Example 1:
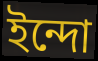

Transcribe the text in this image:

ইন্দো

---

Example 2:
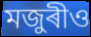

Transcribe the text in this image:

মজুৰীও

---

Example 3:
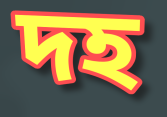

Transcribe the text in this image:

দহ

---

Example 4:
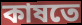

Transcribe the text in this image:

কাষতে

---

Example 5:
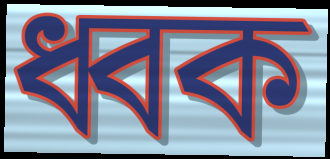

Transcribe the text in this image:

ধ্বক